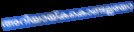
അറിയായ്കകൊണ്ടല്ലയോ